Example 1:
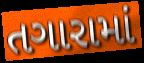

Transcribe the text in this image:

તગારામાં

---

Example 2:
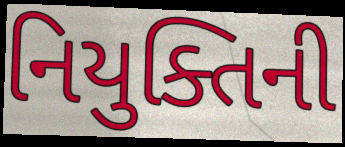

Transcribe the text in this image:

નિયુક્તિની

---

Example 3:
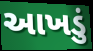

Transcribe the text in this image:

આખડું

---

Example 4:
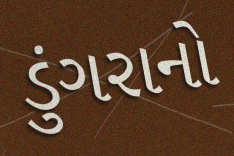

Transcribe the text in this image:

ડુંગરાનો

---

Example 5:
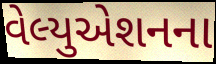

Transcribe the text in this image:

વેલ્યુએશનના